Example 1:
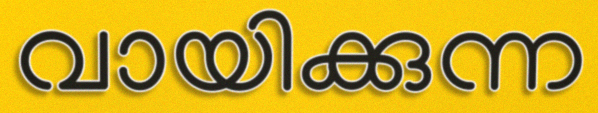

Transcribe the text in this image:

വായിക്കുന്ന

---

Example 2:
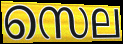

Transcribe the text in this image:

സെല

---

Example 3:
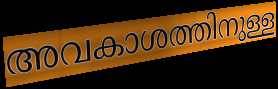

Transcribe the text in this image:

അവകാശത്തിനുള്ള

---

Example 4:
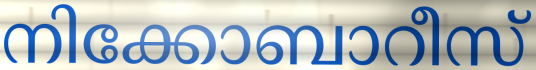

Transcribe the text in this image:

നിക്കോബാറീസ്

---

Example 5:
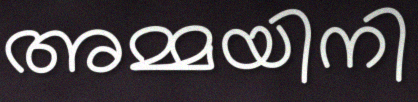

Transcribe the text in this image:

അമ്മയിനി